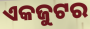
ଏକଜୁଟର